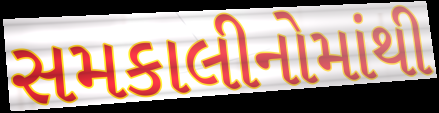
સમકાલીનોમાંથી